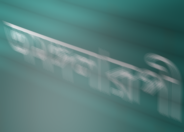
অমঙ্গলারূপী